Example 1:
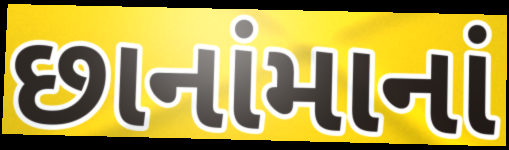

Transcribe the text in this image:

છાનાંમાનાં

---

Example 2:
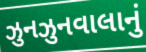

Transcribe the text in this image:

ઝુનઝુનવાલાનું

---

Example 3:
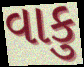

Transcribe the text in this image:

વાકુ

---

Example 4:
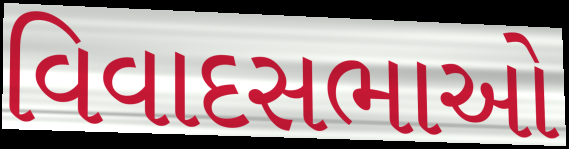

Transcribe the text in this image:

વિવાદસભાઓ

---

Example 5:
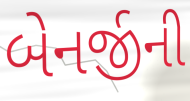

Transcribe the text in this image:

બેનર્જીની